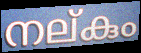
നല്‌കും